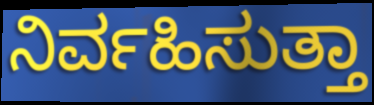
ನಿರ್ವಹಿಸುತ್ತಾ